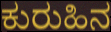
ಕುರುಹಿನ